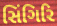
સિંગિરિ